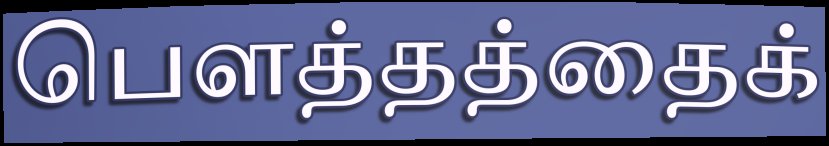
பௌத்தத்தைக்